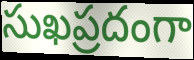
సుఖప్రదంగా